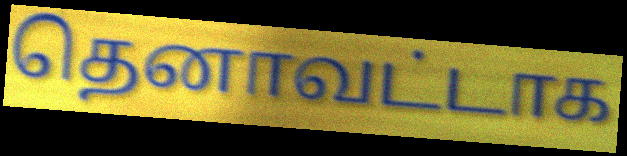
தெனாவட்டாக